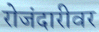
रोजंदारीवर